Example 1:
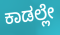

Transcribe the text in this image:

ಕಾಡಲ್ಲೇ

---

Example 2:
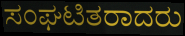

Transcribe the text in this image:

ಸಂಘಟಿತರಾದರು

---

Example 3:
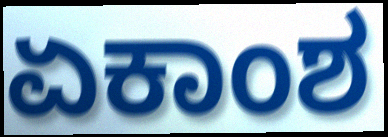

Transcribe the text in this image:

ಏಕಾಂಶ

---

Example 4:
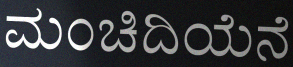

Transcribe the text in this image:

ಮಂಚಿದಿಯೆನೆ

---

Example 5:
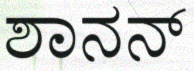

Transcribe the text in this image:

ಶಾನನ್